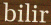
bilir